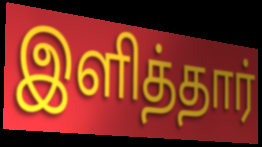
இளித்தார்